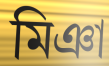
মিঞা